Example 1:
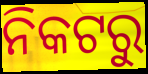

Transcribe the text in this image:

ନିକଟରୁ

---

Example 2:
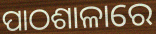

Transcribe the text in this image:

ପାଠଶାଳାରେ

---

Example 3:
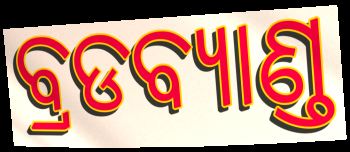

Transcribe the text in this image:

ବ୍ରଡବ୍ୟାଣ୍ଡ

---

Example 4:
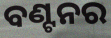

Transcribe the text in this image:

ବଣ୍ଟନର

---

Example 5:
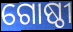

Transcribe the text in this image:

ଗୋଷ୍ଠୀ